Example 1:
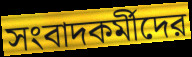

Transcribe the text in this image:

সংবাদকর্মীদের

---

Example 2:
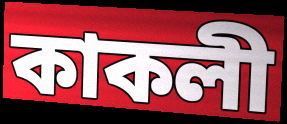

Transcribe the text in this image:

কাকলী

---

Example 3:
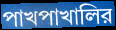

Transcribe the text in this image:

পাখপাখালির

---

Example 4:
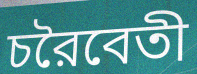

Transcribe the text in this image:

চরৈবেতী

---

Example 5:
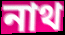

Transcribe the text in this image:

নাথ